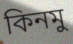
কিনমু